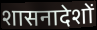
शासनादेशों